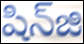
షిన్‌జి